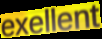
exellent